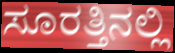
ಸೂರತ್ತಿನಲ್ಲಿ